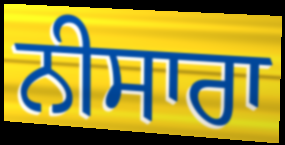
ਨੀਸਾਰਾ